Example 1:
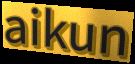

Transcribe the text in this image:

aikun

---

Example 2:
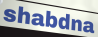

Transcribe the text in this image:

shabdna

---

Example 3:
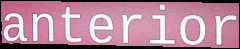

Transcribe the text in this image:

anterior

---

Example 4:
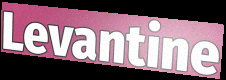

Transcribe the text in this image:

Levantine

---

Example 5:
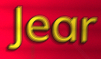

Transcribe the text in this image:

Jear